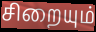
சிறையும்